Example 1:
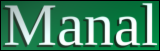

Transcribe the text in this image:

Manal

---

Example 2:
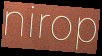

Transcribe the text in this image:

nirop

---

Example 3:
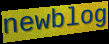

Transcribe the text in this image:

newblog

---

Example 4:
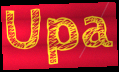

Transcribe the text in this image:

Upa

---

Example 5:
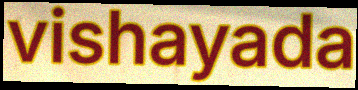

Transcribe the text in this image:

vishayada